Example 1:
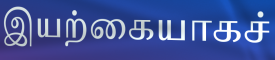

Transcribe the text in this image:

இயற்கையாகச்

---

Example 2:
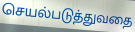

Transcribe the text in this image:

செயல்படுத்துவதை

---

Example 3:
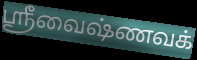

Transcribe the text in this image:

ஸ்ரீவைஷ்ணவக்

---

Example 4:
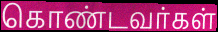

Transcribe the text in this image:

கொண்டவர்கள்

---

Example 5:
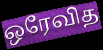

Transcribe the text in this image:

ஒரேவித